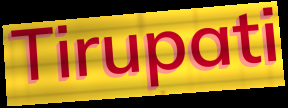
Tirupati